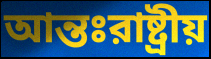
আন্তঃরাষ্ট্রীয়